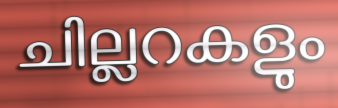
ചില്ലറകളും